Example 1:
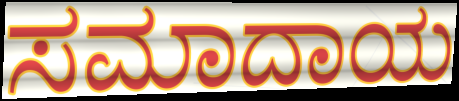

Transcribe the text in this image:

ಸಮಾದಾಯ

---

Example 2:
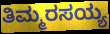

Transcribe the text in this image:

ತಿಮ್ಮರಸಯ್ಯ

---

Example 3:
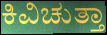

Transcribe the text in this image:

ಕಿವಿಚುತ್ತಾ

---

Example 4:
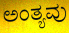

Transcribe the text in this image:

ಅಂತ್ಯವು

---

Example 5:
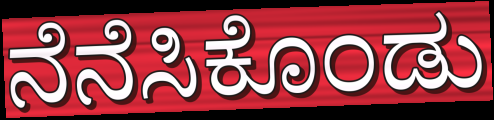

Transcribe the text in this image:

ನೆನೆಸಿಕೊಂಡು